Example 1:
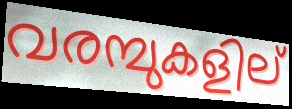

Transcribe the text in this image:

വരമ്പുകളില്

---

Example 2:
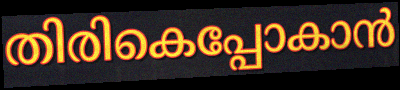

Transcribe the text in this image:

തിരികെപ്പോകാൻ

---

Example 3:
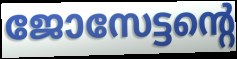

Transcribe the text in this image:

ജോസേട്ടന്റെ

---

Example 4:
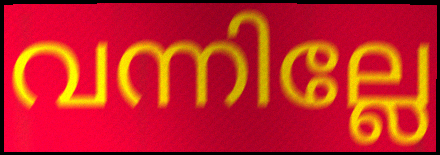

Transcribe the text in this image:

വന്നില്ലേ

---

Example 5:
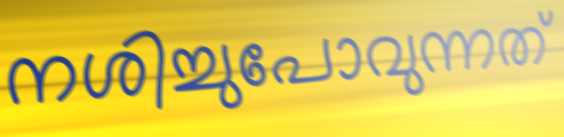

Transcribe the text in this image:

നശിച്ചുപോവുന്നത്